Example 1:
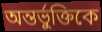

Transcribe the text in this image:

অন্তর্ভুক্তিকে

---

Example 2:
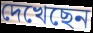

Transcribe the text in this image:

দেখেছেন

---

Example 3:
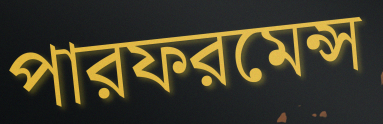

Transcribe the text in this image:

পারফরমেন্স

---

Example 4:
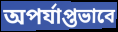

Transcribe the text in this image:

অপর্যাপ্তভাবে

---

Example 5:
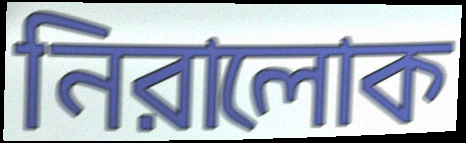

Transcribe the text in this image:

নিরালোক